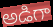
అడిగా